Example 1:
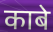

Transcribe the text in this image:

काबे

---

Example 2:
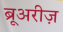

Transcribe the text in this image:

ब्रूअरीज़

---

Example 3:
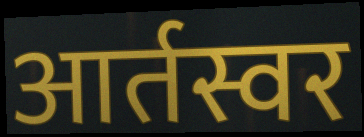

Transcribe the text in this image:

आर्तस्वर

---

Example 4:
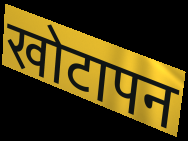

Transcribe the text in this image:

खोटापन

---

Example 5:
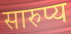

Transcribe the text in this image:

सारुप्य